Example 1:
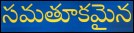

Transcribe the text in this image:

సమతూకమైన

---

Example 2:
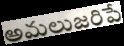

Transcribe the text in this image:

అమలుజరిపే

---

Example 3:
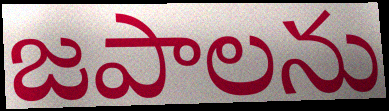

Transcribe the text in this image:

జపాలను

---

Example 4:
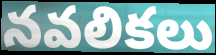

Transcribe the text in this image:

నవలికలు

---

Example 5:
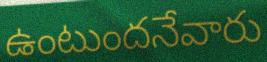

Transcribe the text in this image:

ఉంటుందనేవారు